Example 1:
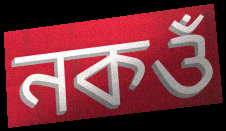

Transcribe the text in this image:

নকওঁ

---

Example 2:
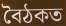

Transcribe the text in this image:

বৈঠকত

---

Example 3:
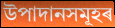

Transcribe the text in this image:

উপাদানসমূহৰ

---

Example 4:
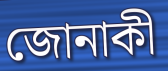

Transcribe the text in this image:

জোনাকী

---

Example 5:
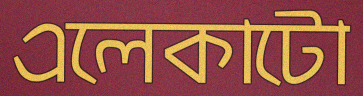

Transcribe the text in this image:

এলেকাটো